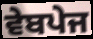
ਵੇਬਪੇਜ